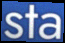
sta